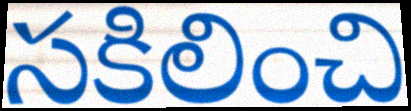
సకిలించి